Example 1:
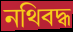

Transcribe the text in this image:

নথিবদ্ধ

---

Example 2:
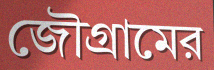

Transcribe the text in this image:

জৌগ্রামের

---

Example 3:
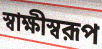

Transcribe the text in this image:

স্বাক্ষীস্বরূপ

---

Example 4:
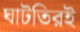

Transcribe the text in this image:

ঘাটতিরই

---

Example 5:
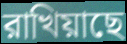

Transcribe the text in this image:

রাখিয়াছে